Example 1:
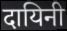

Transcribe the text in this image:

दायिनी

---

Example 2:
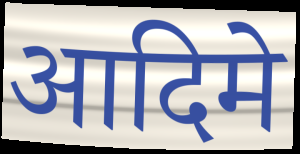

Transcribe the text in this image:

आदिमे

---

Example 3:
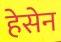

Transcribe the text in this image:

हेसेन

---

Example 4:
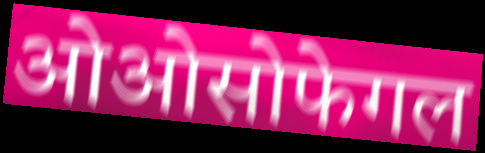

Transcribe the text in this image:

ओओसोफेगल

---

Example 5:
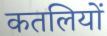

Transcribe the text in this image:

कतलियों